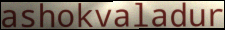
ashokvaladur